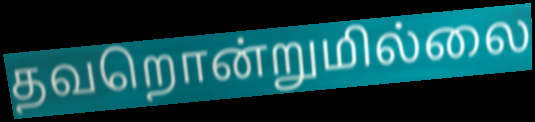
தவறொன்றுமில்லை